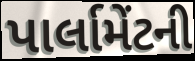
પાર્લામેંટની